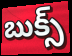
బుక్స్